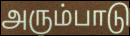
அரும்பாடு